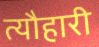
त्यौहारी